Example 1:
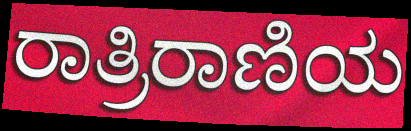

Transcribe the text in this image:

ರಾತ್ರಿರಾಣಿಯ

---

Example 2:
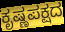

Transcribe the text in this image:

ಕೃಷ್ಣಪಕ್ಷದ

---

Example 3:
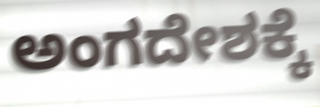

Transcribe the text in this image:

ಅಂಗದೇಶಕ್ಕೆ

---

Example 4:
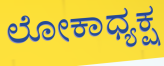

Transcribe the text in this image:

ಲೋಕಾಧ್ಯಕ್ಷ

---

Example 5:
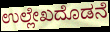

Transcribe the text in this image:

ಉಲ್ಲೇಖದೊಡನೆ